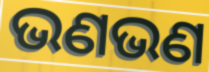
ଭଣଭଣ